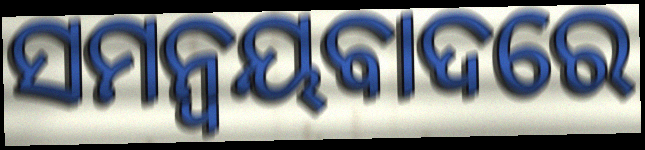
ସମନ୍ୱୟବାଦରେ